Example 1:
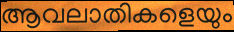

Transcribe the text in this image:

ആവലാതികളെയും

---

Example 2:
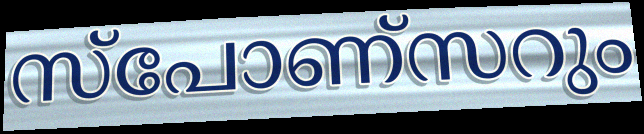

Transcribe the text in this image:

സ്പോണ്സറും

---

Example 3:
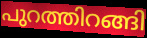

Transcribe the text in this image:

പുറത്തിറങ്ങി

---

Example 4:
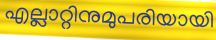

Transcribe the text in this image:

എല്ലാറ്റിനുമുപരിയായി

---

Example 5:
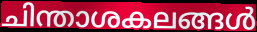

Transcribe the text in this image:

ചിന്താശകലങ്ങൾ